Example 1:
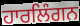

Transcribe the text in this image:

ਹਾਰਲਿੰਗਨ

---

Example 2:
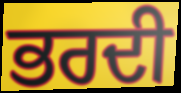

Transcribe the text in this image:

ਭਰਦੀ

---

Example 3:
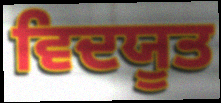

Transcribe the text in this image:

ਵਿਦਯੂਤ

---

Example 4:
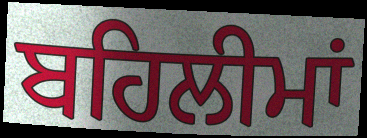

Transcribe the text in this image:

ਬਹਿਲੀਮਾਂ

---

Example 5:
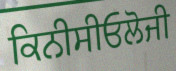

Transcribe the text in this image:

ਕਿਨੀਸੀਓਲੋਜੀ